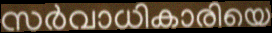
സർവാധികാരിയെ